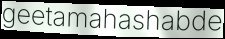
geetamahashabde